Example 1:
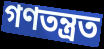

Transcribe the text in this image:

গণতন্ত্ৰত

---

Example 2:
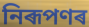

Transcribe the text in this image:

নিৰূপণৰ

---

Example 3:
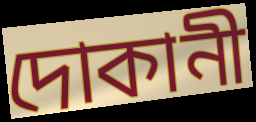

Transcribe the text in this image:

দোকানী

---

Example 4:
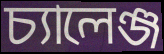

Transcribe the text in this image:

চ্যালেঞ্জ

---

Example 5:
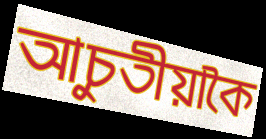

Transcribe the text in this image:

আচুতীয়াকৈ